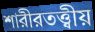
শারীরতত্ত্বীয়